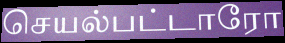
செயல்பட்டாரோ